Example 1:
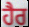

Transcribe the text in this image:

ਹੈਰ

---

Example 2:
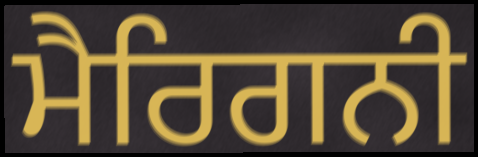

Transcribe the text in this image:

ਮੈਰਿਗਨੀ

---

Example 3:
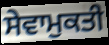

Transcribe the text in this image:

ਸੇਵਾਮੁਕਤੀ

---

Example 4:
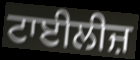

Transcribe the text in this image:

ਟਾਈਲੀਜ਼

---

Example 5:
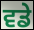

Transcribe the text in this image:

ਵਡੇ